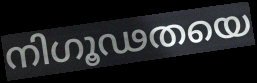
നിഗൂഢതയെ